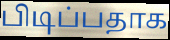
பிடிப்பதாக